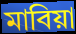
মাবিয়া